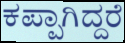
ಕಪ್ಪಾಗಿದ್ದರೆ